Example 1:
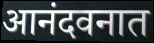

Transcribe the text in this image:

आनंदवनात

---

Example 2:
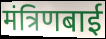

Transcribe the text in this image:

मंत्रिणबाई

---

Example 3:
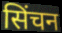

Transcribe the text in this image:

सिंचन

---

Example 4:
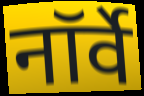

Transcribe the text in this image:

नॉर्वे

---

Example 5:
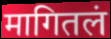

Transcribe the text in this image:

मागितलं